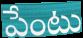
పేంటు